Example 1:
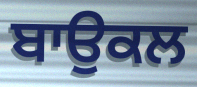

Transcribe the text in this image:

ਬਾਉਕਲ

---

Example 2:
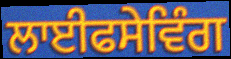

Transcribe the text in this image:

ਲਾਈਫਸੇਵਿੰਗ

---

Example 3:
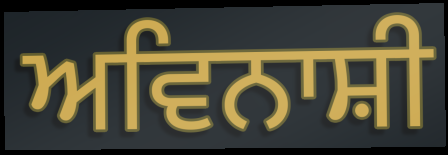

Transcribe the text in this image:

ਅਵਿਨਾਸ਼ੀ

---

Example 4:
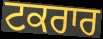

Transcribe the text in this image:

ਟਕਰਾਰ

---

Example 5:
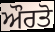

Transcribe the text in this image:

ਔਰਤੋ